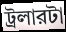
ট্রলারটা